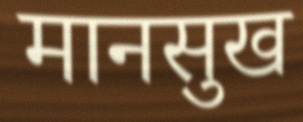
मानसुख